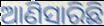
ଆଣିସାରିଛି